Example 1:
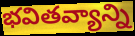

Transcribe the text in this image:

భవితవ్యాన్ని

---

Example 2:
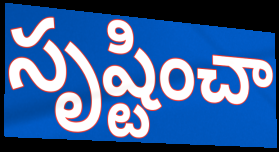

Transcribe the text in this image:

సృష్టించా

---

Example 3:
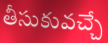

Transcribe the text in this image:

తీసుకువచ్చే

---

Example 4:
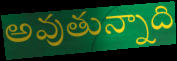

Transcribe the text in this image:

అవుతున్నాది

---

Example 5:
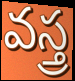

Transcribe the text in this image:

వస్త్ర